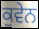
ਕੁਵੇਨ